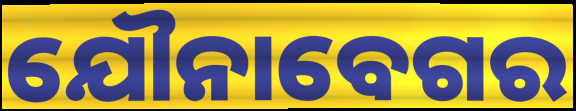
ଯୌନାବେଗର